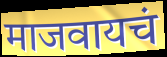
माजवायचं